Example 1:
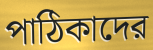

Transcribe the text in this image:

পাঠিকাদের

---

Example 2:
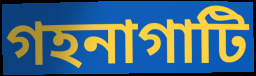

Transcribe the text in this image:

গহনাগাটি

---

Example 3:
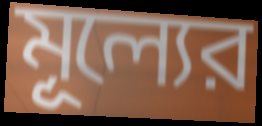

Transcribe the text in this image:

মূল্যের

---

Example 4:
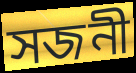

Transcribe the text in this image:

সজনী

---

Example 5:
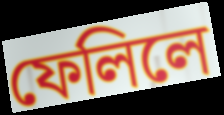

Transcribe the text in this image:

ফেলিলে